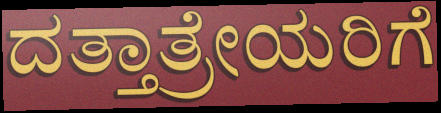
ದತ್ತಾತ್ರೇಯರಿಗೆ